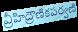
వ్రీహిద్రౌణికపర్వణి